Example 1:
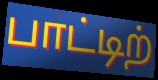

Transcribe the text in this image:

பாட்டிற்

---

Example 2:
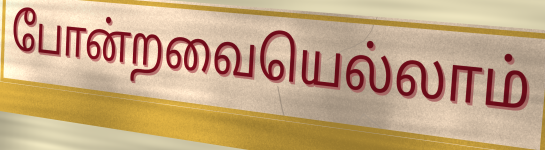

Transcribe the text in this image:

போன்றவையெல்லாம்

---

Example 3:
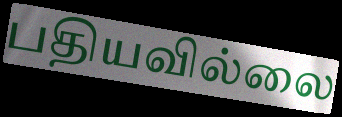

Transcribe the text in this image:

பதியவில்லை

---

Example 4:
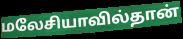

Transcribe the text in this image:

மலேசியாவில்தான்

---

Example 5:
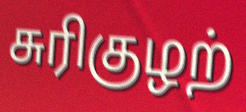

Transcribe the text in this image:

சுரிகுழற்